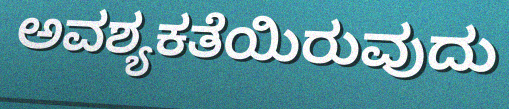
ಅವಶ್ಯಕತೆಯಿರುವುದು